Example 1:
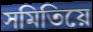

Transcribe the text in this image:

সমিতিয়ে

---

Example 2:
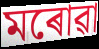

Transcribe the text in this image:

মৰোৱা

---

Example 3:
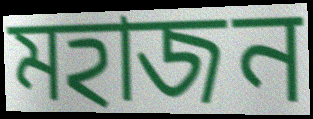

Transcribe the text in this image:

মহাজন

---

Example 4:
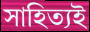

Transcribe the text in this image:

সাহিত্যই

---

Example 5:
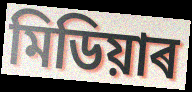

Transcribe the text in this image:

মিডিয়াৰ